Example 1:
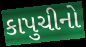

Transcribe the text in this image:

કાપુચીનો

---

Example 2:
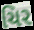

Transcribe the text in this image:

ચિર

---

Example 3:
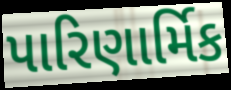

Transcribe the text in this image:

પારિણાર્મિક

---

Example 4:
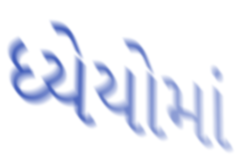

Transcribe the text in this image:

ધ્યેયોમાં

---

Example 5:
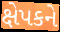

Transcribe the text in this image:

ક્ષેપકને